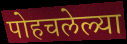
पोहचलेल्या